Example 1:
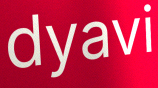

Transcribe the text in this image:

dyavi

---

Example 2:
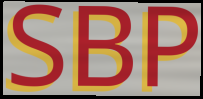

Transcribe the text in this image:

SBP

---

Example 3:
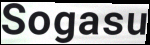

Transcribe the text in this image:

Sogasu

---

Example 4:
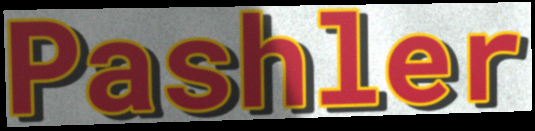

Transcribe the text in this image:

Pashler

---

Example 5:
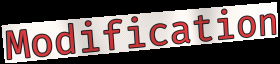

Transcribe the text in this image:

Modification